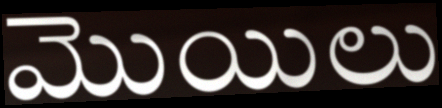
మొయిలు